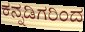
ಕನ್ನಡಿಗರಿಂದ